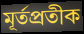
মূর্তপ্রতীক